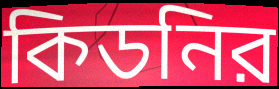
কিডনির